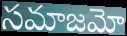
సమాజమో